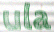
ula